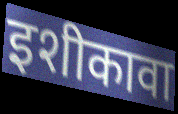
इशीकावा